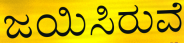
ಜಯಿಸಿರುವೆ